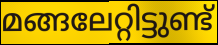
മങ്ങലേറ്റിട്ടുണ്ട്